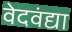
वेदवंद्या